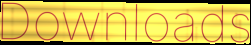
Downloads